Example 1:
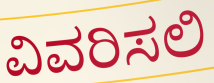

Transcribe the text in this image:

ವಿವರಿಸಲಿ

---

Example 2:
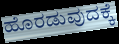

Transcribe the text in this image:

ಹೊರಡುವುದಕ್ಕೆ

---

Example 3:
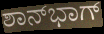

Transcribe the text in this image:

ಶಾನ್‍ಭಾಗ್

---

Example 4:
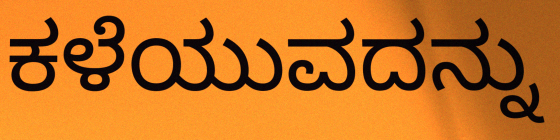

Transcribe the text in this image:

ಕಳೆಯುವದನ್ನು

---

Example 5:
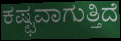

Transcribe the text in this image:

ಕಷ್ಟವಾಗುತ್ತಿದೆ